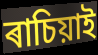
ৰাচিয়াই